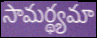
సామర్థ్యమా